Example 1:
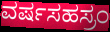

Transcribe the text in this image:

ವರ್ಷಸಹಸ್ರಂ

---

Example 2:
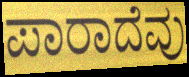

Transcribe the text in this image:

ಪಾರಾದೆವು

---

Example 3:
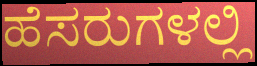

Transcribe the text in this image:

ಹೆಸರುಗಳಲ್ಲಿ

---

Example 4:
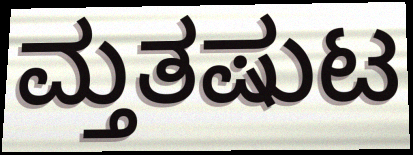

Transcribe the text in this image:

ಮ್ತತಷುಟ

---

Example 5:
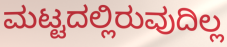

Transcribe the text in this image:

ಮಟ್ಟದಲ್ಲಿರುವುದಿಲ್ಲ